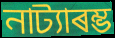
নাট্যাৰম্ভ